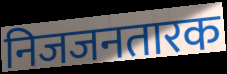
निजजनतारक